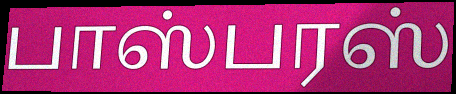
பாஸ்பரஸ்